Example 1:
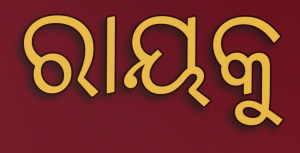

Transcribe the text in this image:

ରାୟକୁ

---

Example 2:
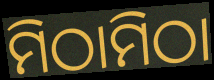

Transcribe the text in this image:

ମିଠାମିଠା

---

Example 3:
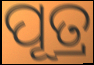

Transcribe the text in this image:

ପୂତ୍ର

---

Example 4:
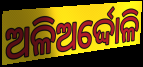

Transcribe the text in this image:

ଅଳିଅର୍ଦ୍ଦୋଳି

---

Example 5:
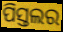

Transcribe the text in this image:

ପିସ୍ତଲର